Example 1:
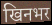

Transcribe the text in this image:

खिनभर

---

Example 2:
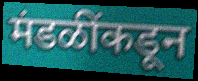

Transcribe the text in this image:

मंडळींकडून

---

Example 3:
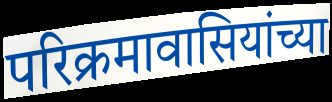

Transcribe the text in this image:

परिक्रमावासियांच्या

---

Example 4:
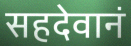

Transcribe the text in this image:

सहदेवानं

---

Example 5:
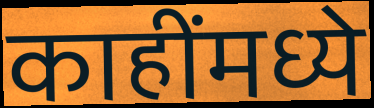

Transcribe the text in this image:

काहींमध्ये